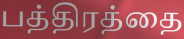
பத்திரத்தை